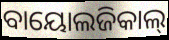
ବାୟୋଲଜିକାଲ୍